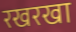
रखरखा